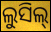
ଲୁସିଲ୍